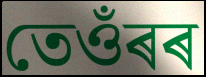
তেওঁৰৰ